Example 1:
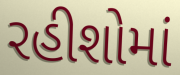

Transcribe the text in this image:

રહીશોમાં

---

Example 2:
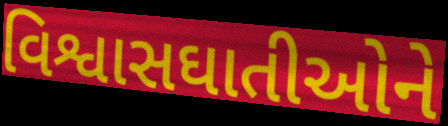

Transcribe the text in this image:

વિશ્વાસઘાતીઓને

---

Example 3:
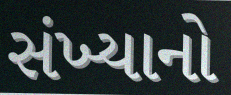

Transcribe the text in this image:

સંખ્યાનો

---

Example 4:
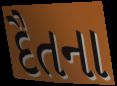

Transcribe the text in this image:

દૈતના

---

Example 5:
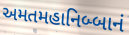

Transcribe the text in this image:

અમતમહાનિબ્બાનં